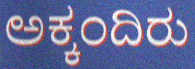
ಅಕ್ಕಂದಿರು